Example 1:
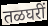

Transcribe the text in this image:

तळघरीं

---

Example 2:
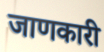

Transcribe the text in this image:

जाणकारी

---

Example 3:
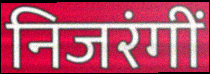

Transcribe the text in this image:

निजरंगीं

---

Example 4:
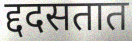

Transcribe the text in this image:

द्ददसतात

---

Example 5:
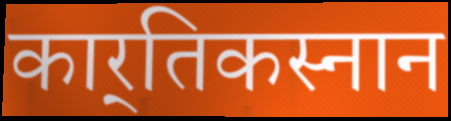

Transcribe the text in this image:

कार्तिकस्नान